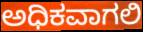
ಅಧಿಕವಾಗಲಿ